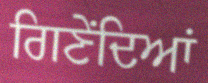
ਗਿਣੇਂਦਿਆਂ